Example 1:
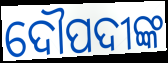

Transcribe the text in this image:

ଦୌପଦୀଙ୍କ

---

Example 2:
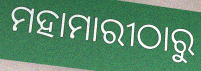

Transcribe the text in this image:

ମହାମାରୀଠାରୁ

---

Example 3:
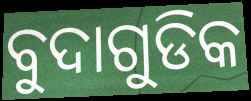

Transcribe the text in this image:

ବୁଦାଗୁଡିକ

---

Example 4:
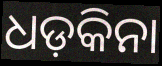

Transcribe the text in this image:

ଧଡ଼କିନା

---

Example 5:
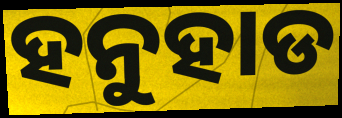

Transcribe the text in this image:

ହନୁହାଡ